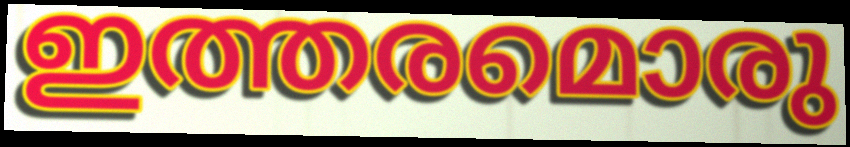
ഇത്തരമൊരു